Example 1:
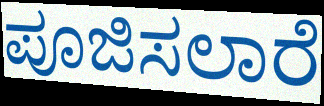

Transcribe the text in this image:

ಪೂಜಿಸಲಾರೆ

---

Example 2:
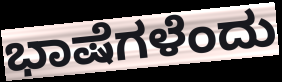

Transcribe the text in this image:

ಭಾಷೆಗಳೆಂದು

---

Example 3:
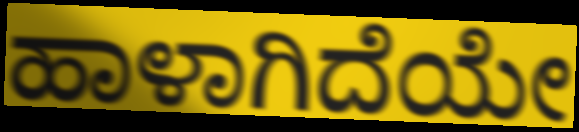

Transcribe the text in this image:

ಹಾಳಾಗಿದೆಯೇ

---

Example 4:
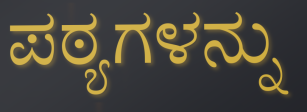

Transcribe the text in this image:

ಪಠ್ಯಗಳನ್ನು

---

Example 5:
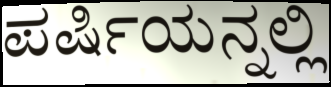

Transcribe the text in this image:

ಪರ್ಷಿಯನ್ನಲ್ಲಿ